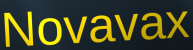
Novavax